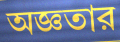
অজ্ঞতার